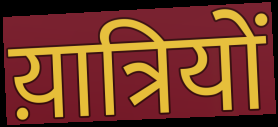
य़ात्रियों